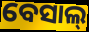
ବେସାଲ୍